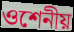
ওশেনীয়